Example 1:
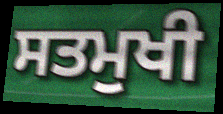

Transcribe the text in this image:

ਸਤਮੁਖੀ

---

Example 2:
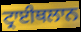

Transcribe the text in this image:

ਟ੍ਰਾਈਥਲਾਨ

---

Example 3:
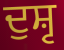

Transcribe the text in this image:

ਦੁਸ਼੍ਟ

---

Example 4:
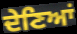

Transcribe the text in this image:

ਦੇਣਿਆਂ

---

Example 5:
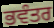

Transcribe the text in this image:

ਭਵੰਤਰ